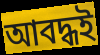
আবদ্ধই